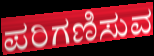
ಪರಿಗಣಿಸುವ